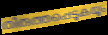
തിരുത്തപ്പെടുകയും